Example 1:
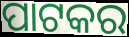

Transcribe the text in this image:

ପାଟକର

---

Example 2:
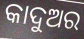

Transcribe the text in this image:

କାଦୁଅର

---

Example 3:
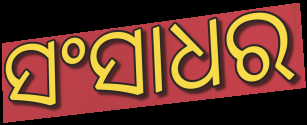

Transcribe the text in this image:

ସଂସାଧର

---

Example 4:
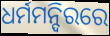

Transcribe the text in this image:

ଧର୍ମମନ୍ଦିରରେ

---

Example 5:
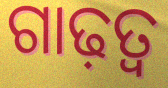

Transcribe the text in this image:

ଗାଢ଼ତ୍ବ